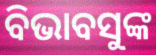
ବିଭାବସୁଙ୍କ